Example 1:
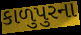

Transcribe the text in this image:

કાળુપુરના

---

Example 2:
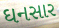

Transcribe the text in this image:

ઘનસાર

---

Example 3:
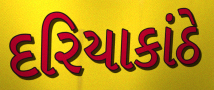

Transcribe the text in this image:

દરિયાકાંઠે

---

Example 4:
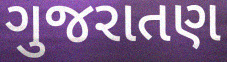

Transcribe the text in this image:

ગુજરાતણ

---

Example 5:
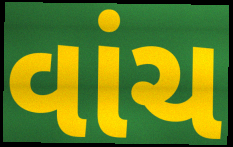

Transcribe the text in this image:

વાંચ